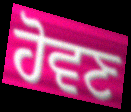
ਹੋਵਣ